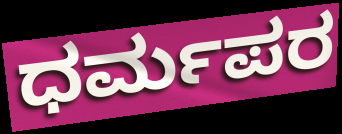
ಧರ್ಮಪರ